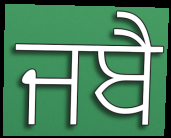
ਜਬੈ